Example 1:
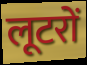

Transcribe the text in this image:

लूटरों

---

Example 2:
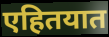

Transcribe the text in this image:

एहितयात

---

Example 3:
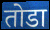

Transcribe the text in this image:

तोडा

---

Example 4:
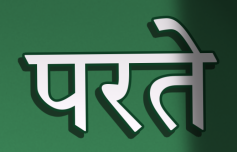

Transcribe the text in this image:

परते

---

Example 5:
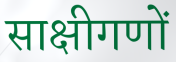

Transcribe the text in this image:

साक्षीगणों